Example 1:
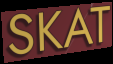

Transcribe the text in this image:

SKAT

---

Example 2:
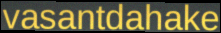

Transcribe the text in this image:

vasantdahake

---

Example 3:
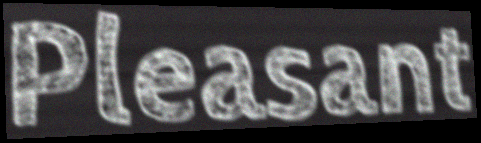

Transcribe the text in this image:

Pleasant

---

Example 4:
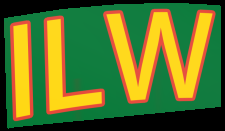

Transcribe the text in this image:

ILW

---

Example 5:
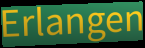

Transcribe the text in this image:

Erlangen